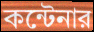
কন্টেনার